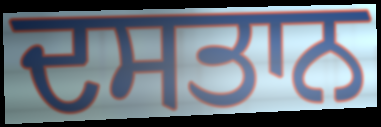
ਦਸਤਾਨ